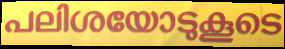
പലിശയോടുകൂടെ